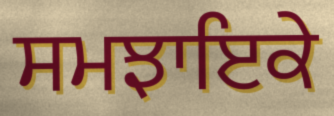
ਸਮਝਾਇਕੇ